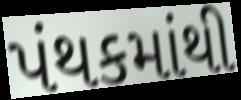
પંથકમાંથી